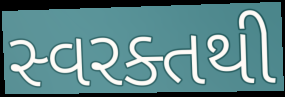
સ્વરક્તથી